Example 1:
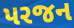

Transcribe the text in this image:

પરજન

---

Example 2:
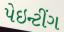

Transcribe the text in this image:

પેઇન્ટીંગ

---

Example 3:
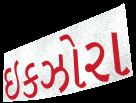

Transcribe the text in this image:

ઇકઝોરા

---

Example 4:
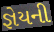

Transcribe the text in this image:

જ્ઞેયની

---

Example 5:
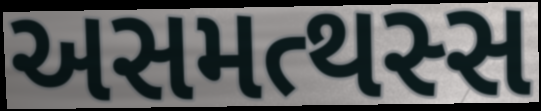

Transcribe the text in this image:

અસમત્થસ્સ